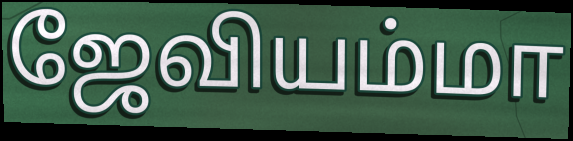
ஜேவியம்மா